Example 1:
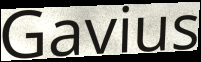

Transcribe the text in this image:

Gavius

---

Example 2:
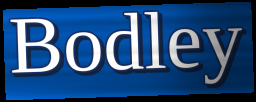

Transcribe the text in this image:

Bodley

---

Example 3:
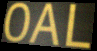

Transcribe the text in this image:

OAL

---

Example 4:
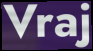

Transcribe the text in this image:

Vraj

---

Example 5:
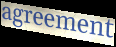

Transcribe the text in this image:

agreement